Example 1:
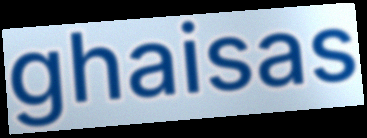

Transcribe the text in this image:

ghaisas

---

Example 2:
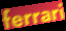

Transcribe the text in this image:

ferrari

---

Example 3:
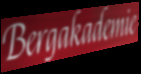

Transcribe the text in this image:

Bergakademie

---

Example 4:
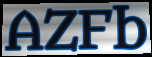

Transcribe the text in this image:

AZFb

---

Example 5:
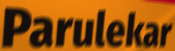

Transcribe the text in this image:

Parulekar